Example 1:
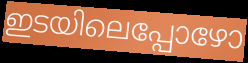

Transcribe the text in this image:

ഇടയിലെപ്പോഴോ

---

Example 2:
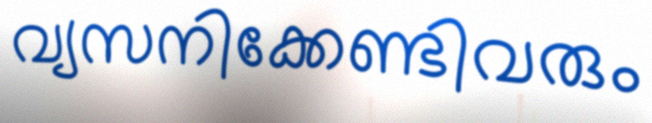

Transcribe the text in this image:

വ്യസനിക്കേണ്ടിവരും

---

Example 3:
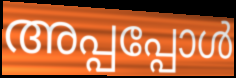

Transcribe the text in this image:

അപ്പപ്പോൾ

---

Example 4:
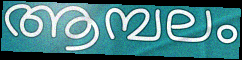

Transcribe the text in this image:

ആമ്പലം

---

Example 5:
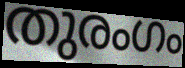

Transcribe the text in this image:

തുരംഗം